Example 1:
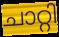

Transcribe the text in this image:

ചാറ്റി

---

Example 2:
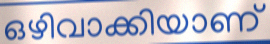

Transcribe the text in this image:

ഒഴിവാക്കിയാണ്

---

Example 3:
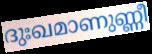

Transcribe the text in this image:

ദുഃഖമാണുണ്ണീ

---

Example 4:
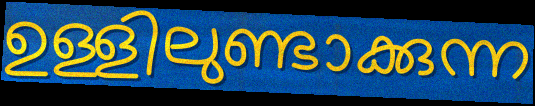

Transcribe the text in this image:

ഉള്ളിലുണ്ടാക്കുന്ന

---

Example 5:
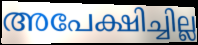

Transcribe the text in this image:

അപേക്ഷിച്ചില്ല